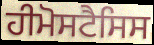
ਹੀਮੋਸਟੈਸਿਸ